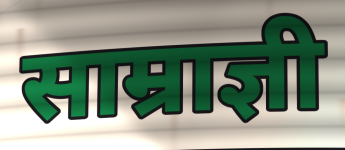
साम्राज्ञी